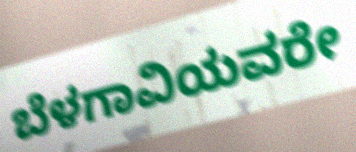
ಬೆಳಗಾವಿಯವರೇ